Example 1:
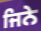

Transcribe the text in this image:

ਜਿਨੇ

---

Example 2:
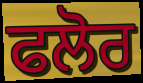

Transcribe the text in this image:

ਫਲੋਰ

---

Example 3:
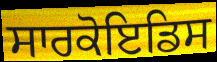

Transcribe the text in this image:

ਸਾਰਕੋਇਡਿਸ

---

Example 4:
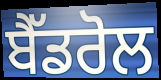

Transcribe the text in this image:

ਬੈੱਡਰੋਲ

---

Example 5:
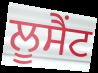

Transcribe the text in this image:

ਲੂਸੈਂਟ